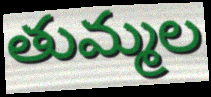
తుమ్మల